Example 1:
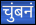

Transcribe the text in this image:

चुंबनं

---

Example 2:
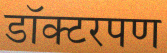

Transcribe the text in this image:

डॉक्टरपण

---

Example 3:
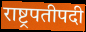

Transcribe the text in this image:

राष्ट्रपतीपदी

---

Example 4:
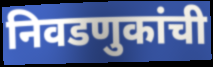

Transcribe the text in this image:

निवडणुकांची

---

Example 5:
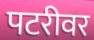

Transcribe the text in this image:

पटरीवर